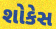
શોકેસ